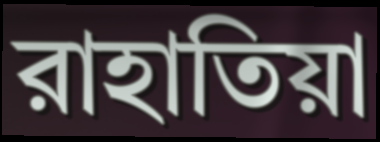
রাহাতিয়া